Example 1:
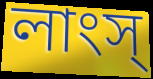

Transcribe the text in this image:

লাংস্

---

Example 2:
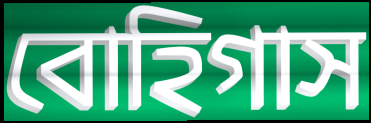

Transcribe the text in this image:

বোহিগাস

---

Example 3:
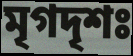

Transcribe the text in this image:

মৃগদৃশঃ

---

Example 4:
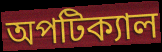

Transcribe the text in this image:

অপটিক্যাল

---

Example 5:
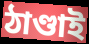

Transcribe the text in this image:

ঠাণ্ডাই